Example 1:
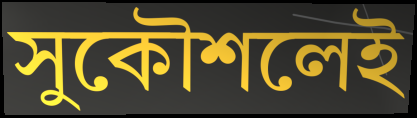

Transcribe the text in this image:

সুকৌশলেই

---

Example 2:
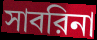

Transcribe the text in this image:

সাবরিনা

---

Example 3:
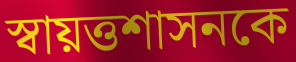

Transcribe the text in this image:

স্বায়ত্তশাসনকে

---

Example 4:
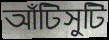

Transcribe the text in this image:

আঁটিসুটি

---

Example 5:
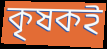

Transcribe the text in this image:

কৃষকই